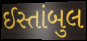
ઈસ્તાંબુલ